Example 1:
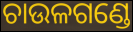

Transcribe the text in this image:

ଚାଉଳଗଣ୍ଡେ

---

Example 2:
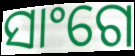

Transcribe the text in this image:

ସାଂଗେ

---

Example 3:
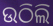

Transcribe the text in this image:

ଉଠିଲି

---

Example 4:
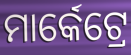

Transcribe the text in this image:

ମାର୍କେଟ୍ରେ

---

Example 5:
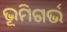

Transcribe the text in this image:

ଭୂମିଗର୍ଭ